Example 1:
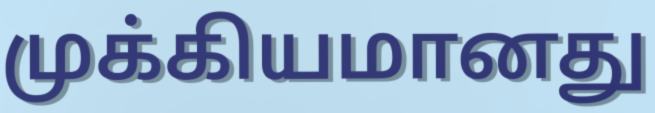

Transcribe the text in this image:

முக்கியமானது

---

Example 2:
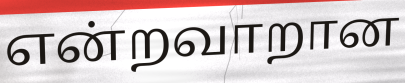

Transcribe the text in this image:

என்றவாறான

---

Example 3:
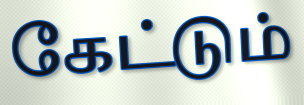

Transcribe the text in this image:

கேட்டும்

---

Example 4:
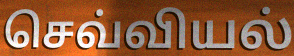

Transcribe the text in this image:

செவ்வியல்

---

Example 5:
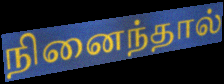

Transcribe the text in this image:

நினைந்தால்